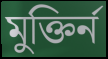
মুক্তির্ন